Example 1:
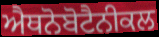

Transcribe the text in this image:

ਐਥਨੋਬੋਟੈਨੀਕਲ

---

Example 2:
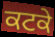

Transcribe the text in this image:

ਕਟਕੇ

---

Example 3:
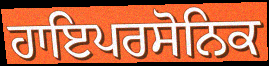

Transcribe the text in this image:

ਹਾਇਪਰਸੋਨਿਕ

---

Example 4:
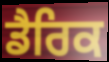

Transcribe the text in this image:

ਡੈਰਿਕ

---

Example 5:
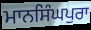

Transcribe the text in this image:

ਮਾਨਸਿੰਘਪੁਰਾ